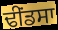
ਢੀੰਂਡਸਾ